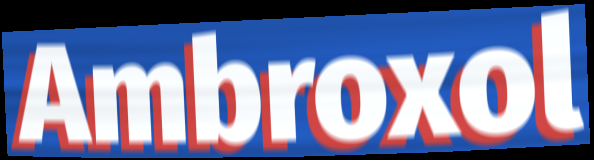
Ambroxol